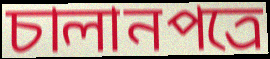
চালানপত্রে